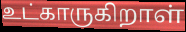
உட்காருகிறாள்